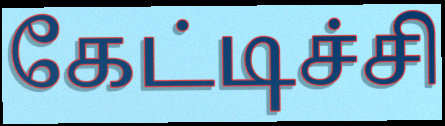
கேட்டிச்சி